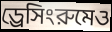
ড্রেসিংরুমেও